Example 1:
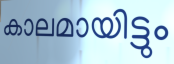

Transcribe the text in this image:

കാലമായിട്ടും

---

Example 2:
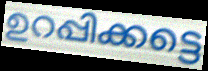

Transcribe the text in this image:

ഉറപ്പിക്കട്ടെ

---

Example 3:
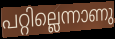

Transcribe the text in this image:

പറ്റില്ലെന്നാണു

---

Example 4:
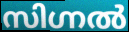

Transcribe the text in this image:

സിഗ്നൽ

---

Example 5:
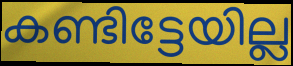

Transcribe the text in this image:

കണ്ടിട്ടേയില്ല